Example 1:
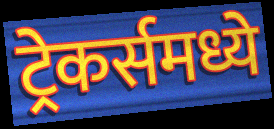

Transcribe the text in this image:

ट्रेकर्समध्ये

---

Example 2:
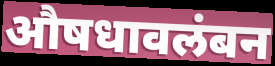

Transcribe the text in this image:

औषधावलंबन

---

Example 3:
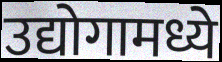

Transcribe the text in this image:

उद्योगामध्ये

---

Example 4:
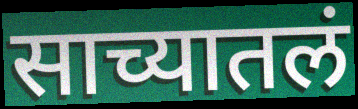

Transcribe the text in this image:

साच्यातलं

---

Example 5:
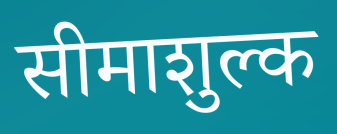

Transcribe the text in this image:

सीमाशुल्क